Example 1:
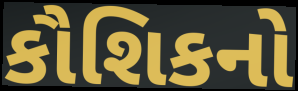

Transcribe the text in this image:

કૌશિકનો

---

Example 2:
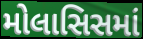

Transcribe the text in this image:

મોલાસિસમાં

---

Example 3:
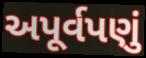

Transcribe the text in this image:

અપૂર્વપણું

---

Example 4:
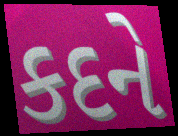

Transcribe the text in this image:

કદને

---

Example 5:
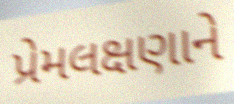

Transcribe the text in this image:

પ્રેમલક્ષણાને